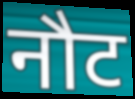
नौट